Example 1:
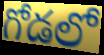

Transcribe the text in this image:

గోడలో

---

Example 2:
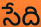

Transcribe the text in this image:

సేది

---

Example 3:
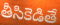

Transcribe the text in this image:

తీసికెడితే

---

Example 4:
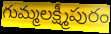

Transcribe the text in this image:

గుమ్మలక్ష్మీపురం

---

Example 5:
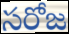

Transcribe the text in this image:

సరోజ